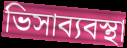
ভিসাব্যবস্থা